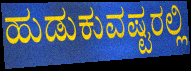
ಹುಡುಕುವಷ್ಟರಲ್ಲಿ